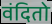
वंदितो